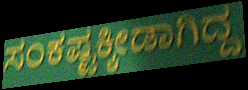
ಸಂಕಷ್ಟಕ್ಕೀಡಾಗಿದ್ದ